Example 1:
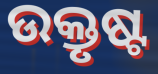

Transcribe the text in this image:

ଉକ୍ତୃଷ୍ଟ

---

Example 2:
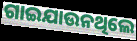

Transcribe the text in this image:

ଗାଇଯାଉନଥିଲେ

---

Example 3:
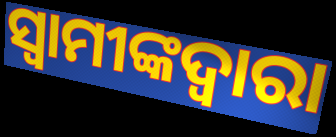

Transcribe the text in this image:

ସ୍ୱାମୀଙ୍କଦ୍ୱାରା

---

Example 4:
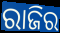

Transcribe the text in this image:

ରାଜିର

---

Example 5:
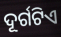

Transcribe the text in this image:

ଦୂର୍ଗଟିଏ